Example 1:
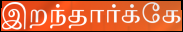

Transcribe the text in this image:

இறந்தார்க்கே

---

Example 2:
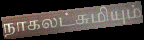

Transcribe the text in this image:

நாகலட்சுமியும்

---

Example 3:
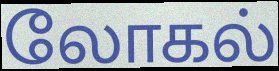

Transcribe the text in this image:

லோகல்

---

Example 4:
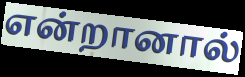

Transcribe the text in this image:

என்றானால்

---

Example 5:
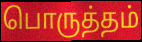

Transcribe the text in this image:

பொருத்தம்